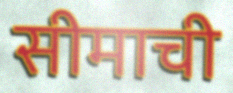
सीमाची